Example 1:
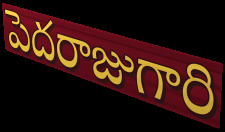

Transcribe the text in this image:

పెదరాజుగారి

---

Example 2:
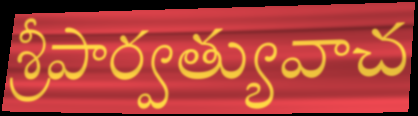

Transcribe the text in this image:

శ్రీపార్వత్యువాచ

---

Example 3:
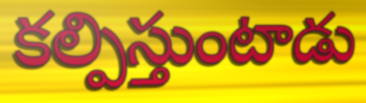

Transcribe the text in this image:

కల్పిస్తుంటాడు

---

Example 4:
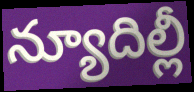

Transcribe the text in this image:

న్యూదిల్లీ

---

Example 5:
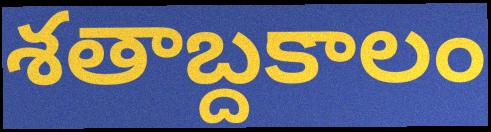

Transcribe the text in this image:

శతాబ్దకాలం